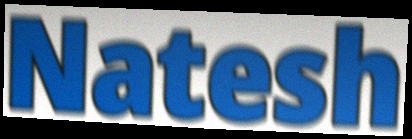
Natesh